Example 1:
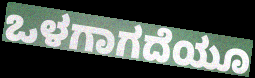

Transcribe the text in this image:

ಒಳಗಾಗದೆಯೂ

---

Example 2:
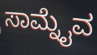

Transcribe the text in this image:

ಸಾಮ್ನೈವ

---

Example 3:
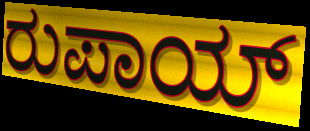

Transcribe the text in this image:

ರುಪಾಯ್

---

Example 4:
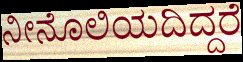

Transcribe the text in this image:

ನೀನೊಲಿಯದಿದ್ದರೆ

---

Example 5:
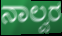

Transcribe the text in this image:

ನಾಲ್ವರ